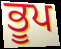
ਭੂਪ